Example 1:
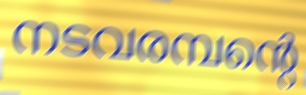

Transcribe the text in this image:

നടവരമ്പന്റെ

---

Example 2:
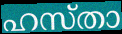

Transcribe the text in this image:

ഹസ്താ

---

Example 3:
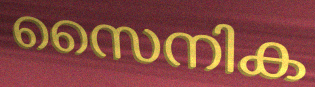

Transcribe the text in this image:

സൈനിക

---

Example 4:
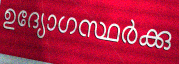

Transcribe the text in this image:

ഉദ്യോഗസ്ഥർക്കു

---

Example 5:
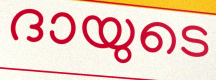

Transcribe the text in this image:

ദായുടെ